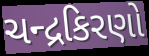
ચન્દ્રકિરણો